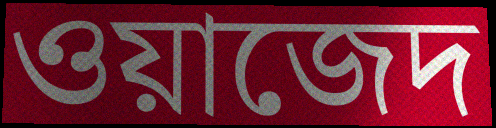
ওয়াজেদ